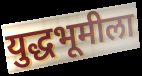
युद्धभूमीला